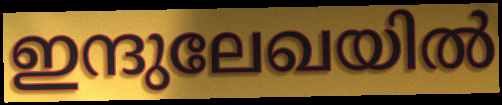
ഇന്ദുലേഖയിൽ